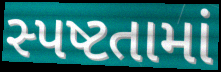
સ્પષ્ટતામાં